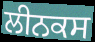
ਲੀਨਕਸ